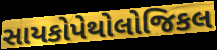
સાયકોપેથોલોજિકલ